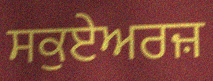
ਸਕੁਏਅਰਜ਼